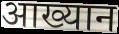
आख्यान